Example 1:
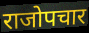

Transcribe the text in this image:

राजोपचार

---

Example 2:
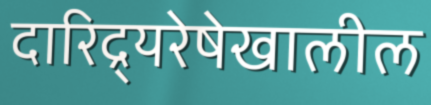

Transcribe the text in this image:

दारिद्र्यरेषेखालील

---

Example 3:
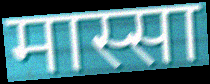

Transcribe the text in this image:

मास्सा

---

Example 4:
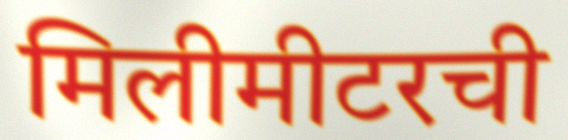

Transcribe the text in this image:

मिलीमीटरची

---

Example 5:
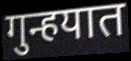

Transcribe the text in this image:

गुन्हयात